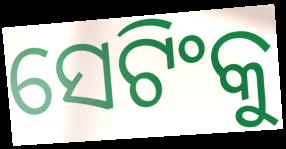
ସେଟିଂକୁ